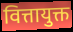
वित्तायुक्त